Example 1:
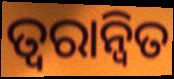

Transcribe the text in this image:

ତ୍ୱରାନ୍ଵିତ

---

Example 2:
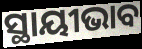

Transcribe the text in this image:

ସ୍ଥାୟୀଭାବ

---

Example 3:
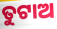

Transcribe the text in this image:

ତୁଟାଅ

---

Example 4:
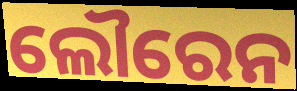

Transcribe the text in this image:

ଲୌରେନ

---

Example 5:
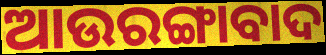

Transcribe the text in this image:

ଆଉରଙ୍ଗାବାଦ